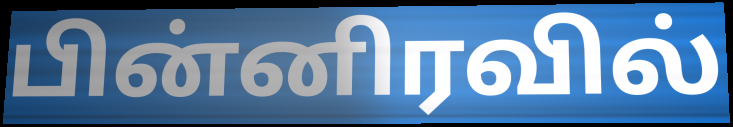
பின்னிரவில்